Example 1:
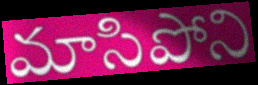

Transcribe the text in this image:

మాసిపోని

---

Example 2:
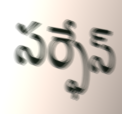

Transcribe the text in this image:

సర్ఫేస్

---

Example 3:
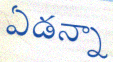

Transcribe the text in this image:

ఏడన్నా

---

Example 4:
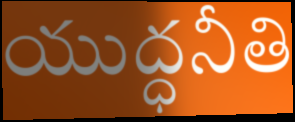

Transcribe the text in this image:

యుద్ధనీతి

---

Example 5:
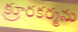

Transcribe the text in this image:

క్రూరకర్మను